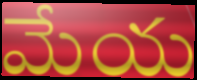
మేయ